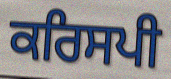
ਕਰਿਸਪੀ